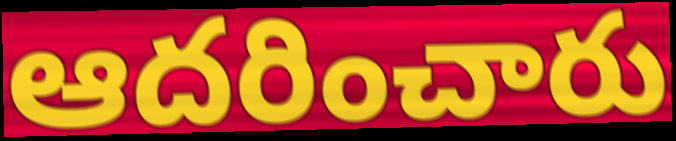
ఆదరించారు